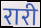
रारी